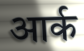
आर्क